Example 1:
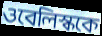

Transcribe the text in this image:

ওবেলিস্ককে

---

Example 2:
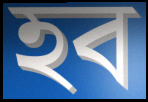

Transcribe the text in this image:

হব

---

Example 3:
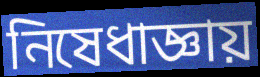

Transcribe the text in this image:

নিষেধাজ্ঞায়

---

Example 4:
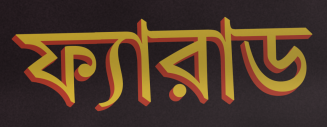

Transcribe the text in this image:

ফ্যারাড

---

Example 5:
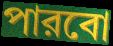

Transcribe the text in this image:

পারবো